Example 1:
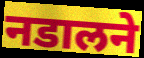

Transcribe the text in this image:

नडालने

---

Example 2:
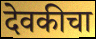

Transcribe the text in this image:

देवकीचा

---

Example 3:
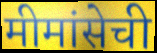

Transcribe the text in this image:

मीमांसेची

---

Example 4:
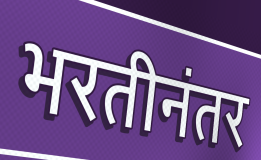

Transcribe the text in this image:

भरतीनंतर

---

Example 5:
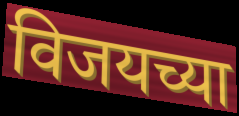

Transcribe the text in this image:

विजयच्या